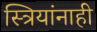
स्त्रियांनाही